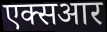
एक्सआर